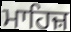
ਮਾਹਿਜ਼